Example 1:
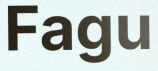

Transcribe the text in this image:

Fagu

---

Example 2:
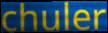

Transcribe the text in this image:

chuler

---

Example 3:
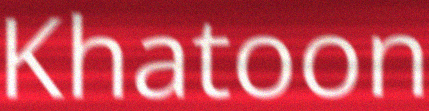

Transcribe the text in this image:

Khatoon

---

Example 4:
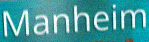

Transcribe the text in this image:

Manheim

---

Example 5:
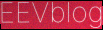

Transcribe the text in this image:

EEVblog